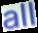
all